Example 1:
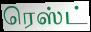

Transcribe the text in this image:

ரெஸ்ட்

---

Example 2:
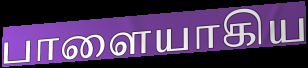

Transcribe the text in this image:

பாளையாகிய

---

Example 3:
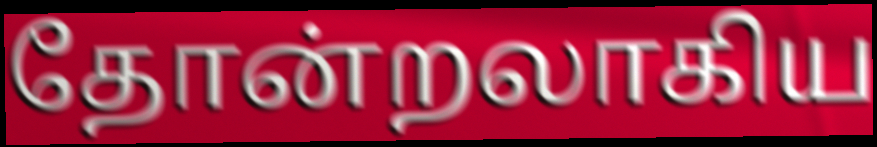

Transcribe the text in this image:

தோன்றலாகிய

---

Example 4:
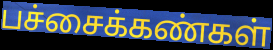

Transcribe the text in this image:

பச்சைக்கண்கள்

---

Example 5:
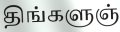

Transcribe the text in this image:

திங்களுஞ்